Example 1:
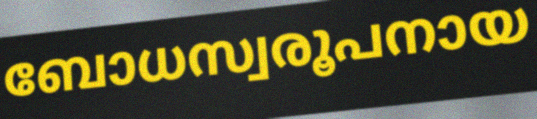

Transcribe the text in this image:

ബോധസ്വരൂപനായ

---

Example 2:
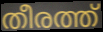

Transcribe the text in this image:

തീരത്ത്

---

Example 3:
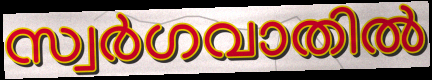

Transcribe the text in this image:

സ്വർഗവാതിൽ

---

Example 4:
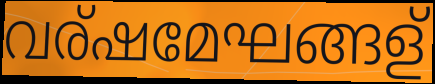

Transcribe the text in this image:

വര്ഷമേഘങ്ങള്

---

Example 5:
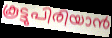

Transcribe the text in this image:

കൂട്ടുപിരിയാൻ